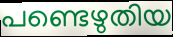
പണ്ടെഴുതിയ